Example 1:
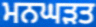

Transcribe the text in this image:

ਮਨਘੜਤ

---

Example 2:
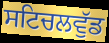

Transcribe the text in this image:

ਸਟਿਚਲਵੁੱਡ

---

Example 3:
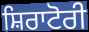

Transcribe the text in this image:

ਸ਼ਿਰਾਟੋਰੀ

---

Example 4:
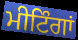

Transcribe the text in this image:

ਮੀਟਿੰਗਾਂ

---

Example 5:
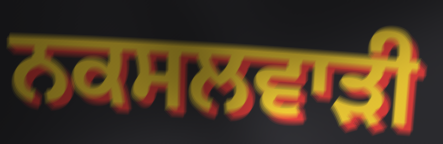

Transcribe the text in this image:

ਨਕਸਲਵਾੜੀ